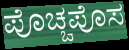
ಪೊಚ್ಚಪೊಸ